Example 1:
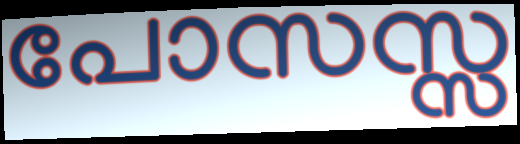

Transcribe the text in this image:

പോസസ്സ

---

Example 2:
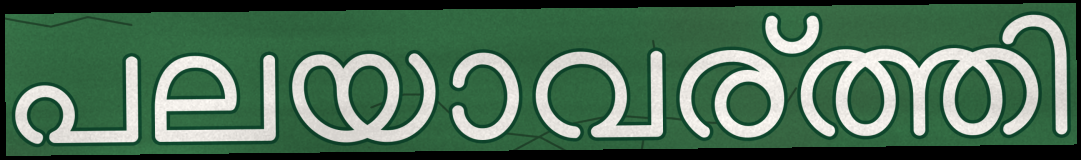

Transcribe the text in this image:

പലയാവര്ത്തി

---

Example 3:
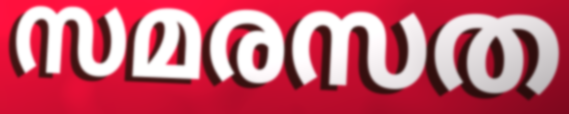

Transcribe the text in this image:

സമരസത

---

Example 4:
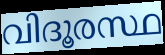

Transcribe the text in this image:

വിദൂരസ്ഥ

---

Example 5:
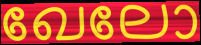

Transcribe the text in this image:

ഖേലോ